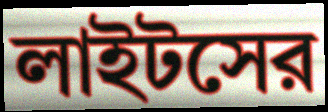
লাইটসের